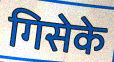
गिसेके